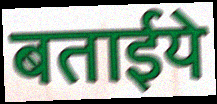
बताईये